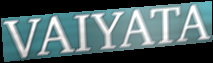
VAIYATA